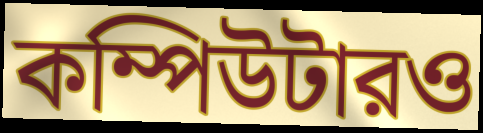
কম্পিউটারও